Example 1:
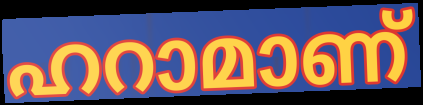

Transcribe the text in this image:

ഹറാമാണ്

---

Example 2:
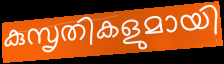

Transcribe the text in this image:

കുസൃതികളുമായി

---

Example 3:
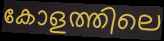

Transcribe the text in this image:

കോളത്തിലെ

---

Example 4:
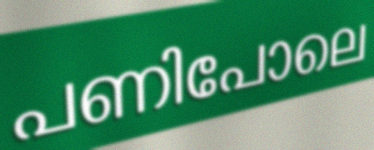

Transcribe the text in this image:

പണിപോലെ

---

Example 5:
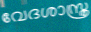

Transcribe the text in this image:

വേദശാസ്ത്ര